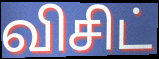
விசிட்